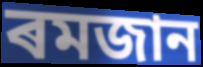
ৰমজান